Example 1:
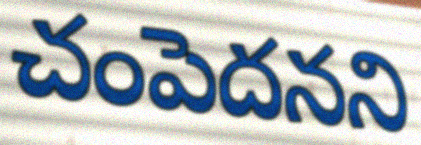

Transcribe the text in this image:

చంపెదనని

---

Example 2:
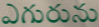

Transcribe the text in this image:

ఎగురును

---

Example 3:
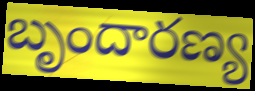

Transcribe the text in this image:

బృందారణ్య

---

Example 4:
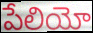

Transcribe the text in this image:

పేలియో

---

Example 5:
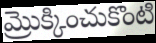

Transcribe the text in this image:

మ్రొక్కించుకొంటి